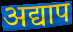
अद्याप